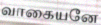
வாகையனே